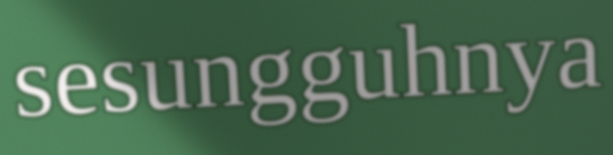
sesungguhnya